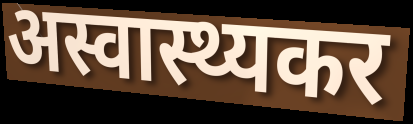
अस्वास्थ्यकर